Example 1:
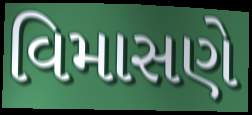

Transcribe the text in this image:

વિમાસણે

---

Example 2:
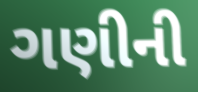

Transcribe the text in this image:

ગણીની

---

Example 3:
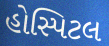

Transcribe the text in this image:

હોસ્પિટલ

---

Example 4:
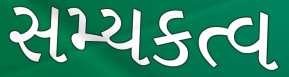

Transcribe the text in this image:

સમ્યકત્વ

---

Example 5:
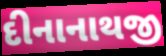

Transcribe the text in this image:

દીનાનાથજી